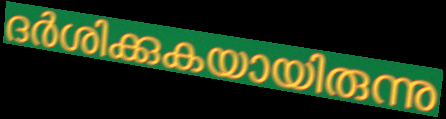
ദർശിക്കുകയായിരുന്നു